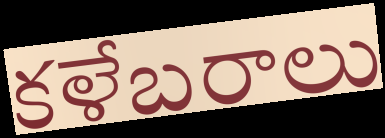
కళేబరాలు